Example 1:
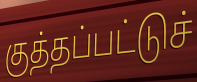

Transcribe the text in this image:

குத்தப்பட்டுச்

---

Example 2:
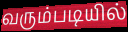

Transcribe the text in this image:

வரும்படியில்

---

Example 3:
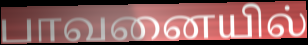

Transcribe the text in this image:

பாவனையில்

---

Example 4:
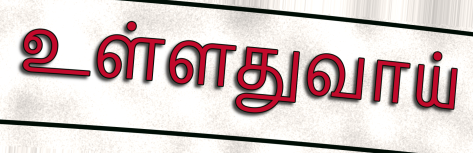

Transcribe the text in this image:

உள்ளதுவாய்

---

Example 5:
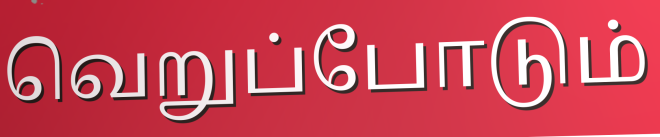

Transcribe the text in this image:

வெறுப்போடும்